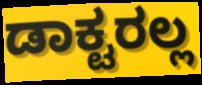
ಡಾಕ್ಟರಲ್ಲ